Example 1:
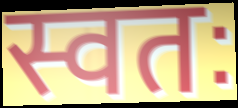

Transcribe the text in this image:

स्वतः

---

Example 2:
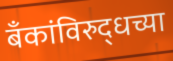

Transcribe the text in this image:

बँकांविरुद्धच्या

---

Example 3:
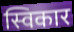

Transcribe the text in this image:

स्विकार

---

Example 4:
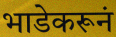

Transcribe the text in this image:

भाडेकरूनं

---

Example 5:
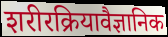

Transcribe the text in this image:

शरीरक्रियावैज्ञानिक